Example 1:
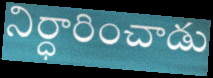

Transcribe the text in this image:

నిర్ధారించాడు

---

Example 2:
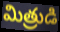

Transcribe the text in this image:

మిత్రుడి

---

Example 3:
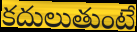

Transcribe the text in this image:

కదులుతుంటే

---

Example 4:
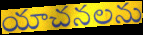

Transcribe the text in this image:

యాచనలను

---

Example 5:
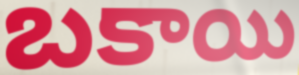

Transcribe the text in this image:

బకాయి